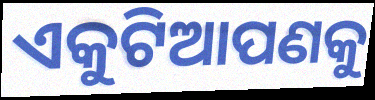
ଏକୁଟିଆପଣକୁ